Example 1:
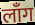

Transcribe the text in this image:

लाँग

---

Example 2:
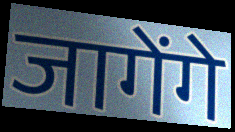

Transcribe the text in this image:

जागेंगे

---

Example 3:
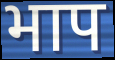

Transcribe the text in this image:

भाप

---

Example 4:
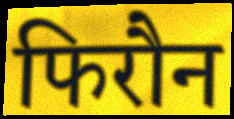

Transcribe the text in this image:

फिरौन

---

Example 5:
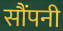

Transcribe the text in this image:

सौंपनी